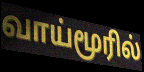
வாய்மூரில்